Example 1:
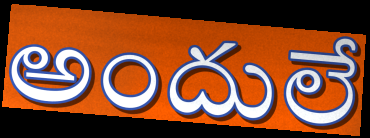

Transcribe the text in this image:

అందులే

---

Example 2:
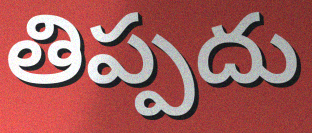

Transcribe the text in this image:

తిప్పదు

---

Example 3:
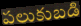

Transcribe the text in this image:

పలుకుబడి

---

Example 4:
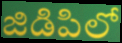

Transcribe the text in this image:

జిడిపిలో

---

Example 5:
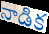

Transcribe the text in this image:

నాడిక